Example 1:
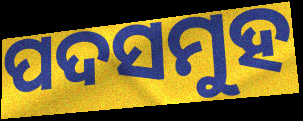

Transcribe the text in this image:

ପଦସମୁହ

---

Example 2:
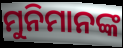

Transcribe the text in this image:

ମୁନିମାନଙ୍କ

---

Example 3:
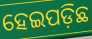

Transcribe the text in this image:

ହେଇପଡ଼ିଛ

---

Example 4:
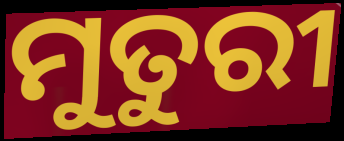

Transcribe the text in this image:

ମୁତୁରୀ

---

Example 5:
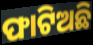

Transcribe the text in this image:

ଫାଟିଅଛି